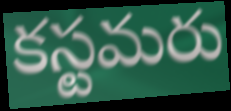
కస్టమరు